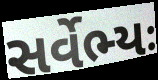
સર્વેભ્યઃ